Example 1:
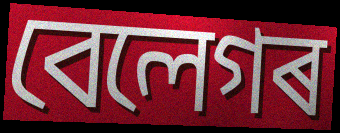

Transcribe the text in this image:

বেলেগৰ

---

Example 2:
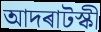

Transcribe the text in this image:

আদৰাটস্কী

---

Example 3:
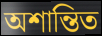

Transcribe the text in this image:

অশান্তিত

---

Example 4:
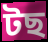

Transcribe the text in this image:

টছ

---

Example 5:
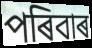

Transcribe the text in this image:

পৰিবাৰ